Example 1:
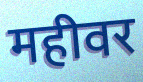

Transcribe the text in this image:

महीवर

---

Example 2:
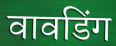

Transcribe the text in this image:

वावडिंग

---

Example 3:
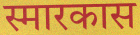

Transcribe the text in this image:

स्मारकास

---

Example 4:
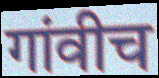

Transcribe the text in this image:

गांवीच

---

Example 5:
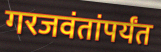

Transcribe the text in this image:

गरजवंतांपर्यंत